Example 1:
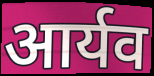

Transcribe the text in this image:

आर्यव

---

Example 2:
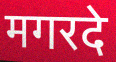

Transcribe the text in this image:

मगरदे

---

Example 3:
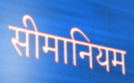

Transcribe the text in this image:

सीमानियम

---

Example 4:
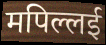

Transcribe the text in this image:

मपिल्लई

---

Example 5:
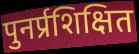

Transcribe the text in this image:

पुनर्प्रशिक्षित